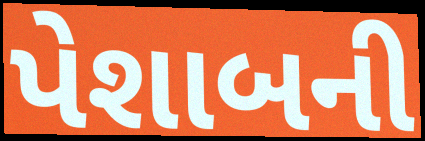
પેશાબની